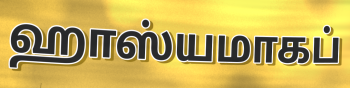
ஹாஸ்யமாகப்